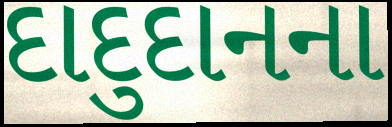
દાદુદાનના